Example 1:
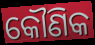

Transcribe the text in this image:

କୌଣିକ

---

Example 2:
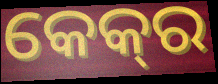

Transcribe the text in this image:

କେକ୍‌ର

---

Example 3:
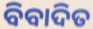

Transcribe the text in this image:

ବିବାଦିତ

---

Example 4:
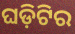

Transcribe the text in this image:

ଘଡ଼ିଟିର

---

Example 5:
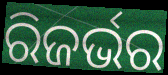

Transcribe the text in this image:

ରିଜର୍ଭର